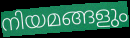
നിയമങ്ങളും